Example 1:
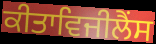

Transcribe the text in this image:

ਕੀਤਾਵਿਜੀਲੈਂਸ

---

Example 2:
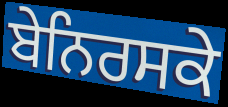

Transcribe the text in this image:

ਬੇਨਿਰਸਕੇ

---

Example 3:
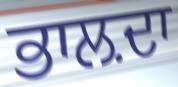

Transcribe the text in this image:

ਭਾਲ਼ਦਾ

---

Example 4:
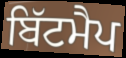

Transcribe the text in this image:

ਬਿੱਟਮੈਪ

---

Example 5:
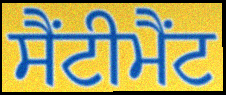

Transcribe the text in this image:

ਸੈਂਟੀਮੈਂਟ